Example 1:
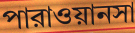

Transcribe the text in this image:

পারাওয়ানসা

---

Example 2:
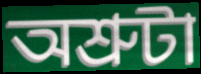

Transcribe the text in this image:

অশ্রুটা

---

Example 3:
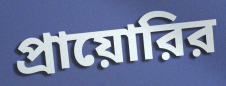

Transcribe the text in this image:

প্রায়োরির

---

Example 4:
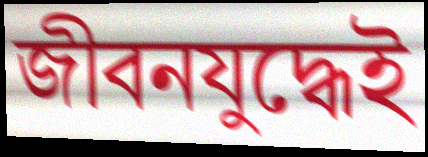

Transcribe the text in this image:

জীবনযুদ্ধেই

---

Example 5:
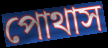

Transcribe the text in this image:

পোথাস